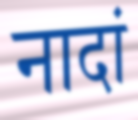
नादां